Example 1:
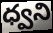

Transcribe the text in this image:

ధ్వని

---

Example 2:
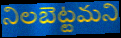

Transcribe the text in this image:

నిలబెట్టమని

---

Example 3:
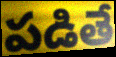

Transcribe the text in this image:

పడితే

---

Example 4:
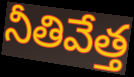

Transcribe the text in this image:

నీతివేత్త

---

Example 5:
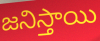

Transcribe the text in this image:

జనిస్తాయి